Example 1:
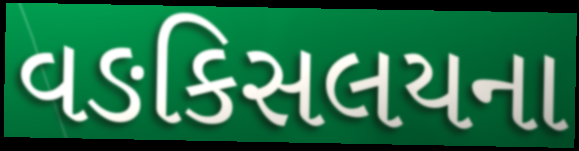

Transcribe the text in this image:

વઙકિસલયના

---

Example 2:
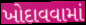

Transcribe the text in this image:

ખોદાવવામાં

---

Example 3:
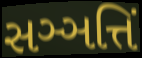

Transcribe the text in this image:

સઞ્ઞત્તિં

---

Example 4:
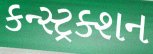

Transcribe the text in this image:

કન્સ્ટ્રક્શન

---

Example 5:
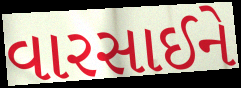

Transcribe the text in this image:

વારસાઈને